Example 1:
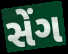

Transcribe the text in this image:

સેંગ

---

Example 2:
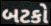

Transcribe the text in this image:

બટકો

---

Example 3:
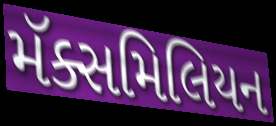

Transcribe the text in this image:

મૅક્સમિલિયન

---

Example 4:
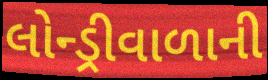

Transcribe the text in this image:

લોન્ડ્રીવાળાની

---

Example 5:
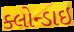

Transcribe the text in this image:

ક્લોન્ડાઇ